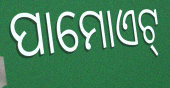
ପାମୋଏଟ୍